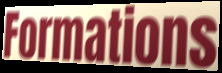
Formations